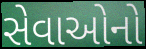
સેવાઓનો